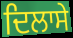
ਦਿਲਾਸੇ